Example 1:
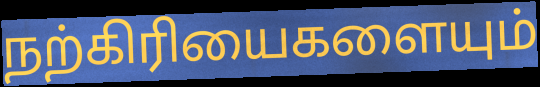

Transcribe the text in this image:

நற்கிரியைகளையும்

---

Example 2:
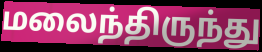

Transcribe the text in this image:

மலைந்திருந்து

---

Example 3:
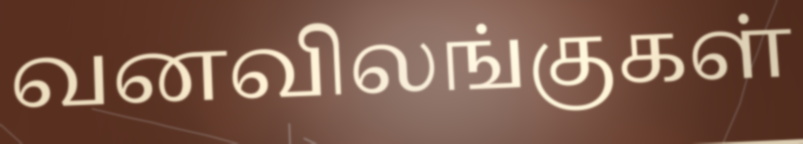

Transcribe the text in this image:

வனவிலங்குகள்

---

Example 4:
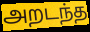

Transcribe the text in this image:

அறடந்த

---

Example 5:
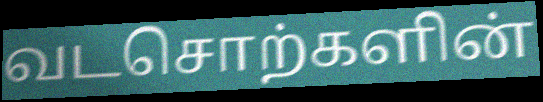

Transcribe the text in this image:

வடசொற்களின்